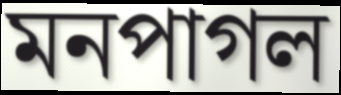
মনপাগল